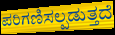
ಪರಿಗಣಿಸಲ್ಪಡುತ್ತದೆ